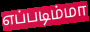
எப்படிம்மா